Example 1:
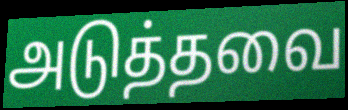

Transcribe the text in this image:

அடுத்தவை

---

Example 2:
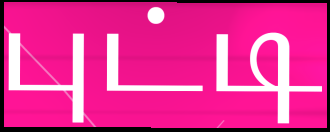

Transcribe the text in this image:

புட்டி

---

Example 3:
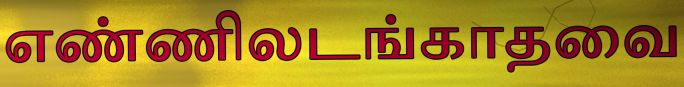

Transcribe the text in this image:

எண்ணிலடங்காதவை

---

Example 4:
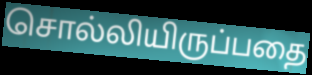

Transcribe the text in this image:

சொல்லியிருப்பதை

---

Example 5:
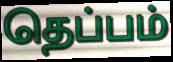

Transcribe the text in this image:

தெப்பம்